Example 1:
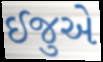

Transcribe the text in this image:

ઈજુએ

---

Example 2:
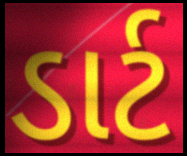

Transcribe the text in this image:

ડાર્ટ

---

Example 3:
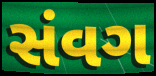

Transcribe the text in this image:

સંવગ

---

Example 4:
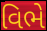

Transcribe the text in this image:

વિભે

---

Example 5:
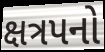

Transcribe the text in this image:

ક્ષત્રપનો